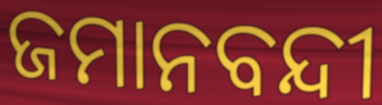
ଜମାନବନ୍ଦୀ